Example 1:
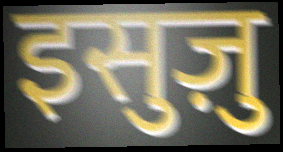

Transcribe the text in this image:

इसुज़ु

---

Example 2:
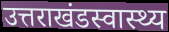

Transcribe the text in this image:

उत्तराखंडस्वास्थ्य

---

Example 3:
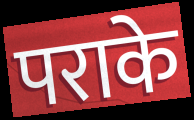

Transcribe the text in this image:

पराके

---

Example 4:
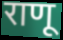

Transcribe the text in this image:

राणू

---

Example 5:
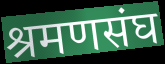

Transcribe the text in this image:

श्रमणसंघ